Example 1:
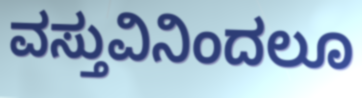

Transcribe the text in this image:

ವಸ್ತುವಿನಿಂದಲೂ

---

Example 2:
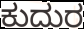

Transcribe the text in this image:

ಕುದುರ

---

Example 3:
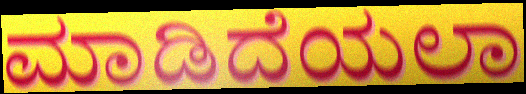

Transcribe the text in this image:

ಮಾಡಿದೆಯಲಾ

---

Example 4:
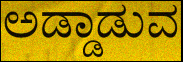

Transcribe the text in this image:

ಅಡ್ಡಾಡುವ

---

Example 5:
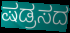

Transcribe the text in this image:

ಷಡ್ರಸದ